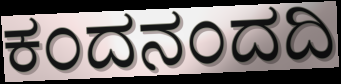
ಕಂದನಂದದಿ